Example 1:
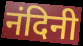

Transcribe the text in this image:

नंदिनी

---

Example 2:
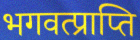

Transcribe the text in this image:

भगवत्प्राप्ति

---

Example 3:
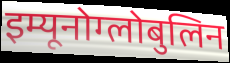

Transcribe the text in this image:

इम्यूनोग्लोबुलिन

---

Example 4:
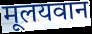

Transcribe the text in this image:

मूलयवान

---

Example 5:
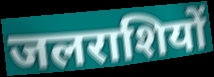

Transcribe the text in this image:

जलराशियों